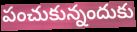
పంచుకున్నందుకు